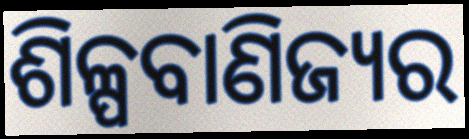
ଶିଳ୍ପବାଣିଜ୍ୟର